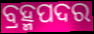
ବ୍ରହ୍ମପଦର